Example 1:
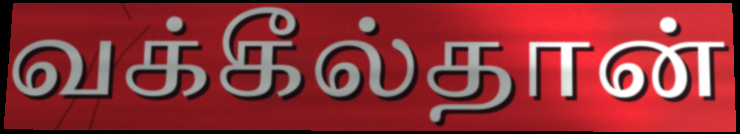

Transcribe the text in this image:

வக்கீல்தான்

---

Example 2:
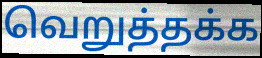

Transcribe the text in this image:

வெறுத்தக்க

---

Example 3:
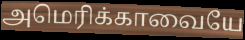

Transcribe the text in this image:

அமெரிக்காவையே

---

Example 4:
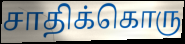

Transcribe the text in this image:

சாதிக்கொரு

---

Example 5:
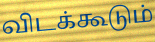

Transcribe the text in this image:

விடக்கூடும்